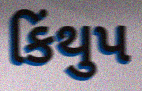
કિંથુપ